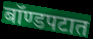
बॉण्डपटात